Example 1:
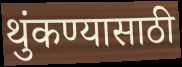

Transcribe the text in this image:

थुंकण्यासाठी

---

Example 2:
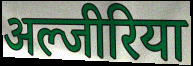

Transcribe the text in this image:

अल्जीरिया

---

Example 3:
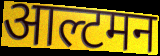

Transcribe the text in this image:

आल्टमन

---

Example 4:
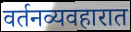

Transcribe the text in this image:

वर्तनव्यवहारात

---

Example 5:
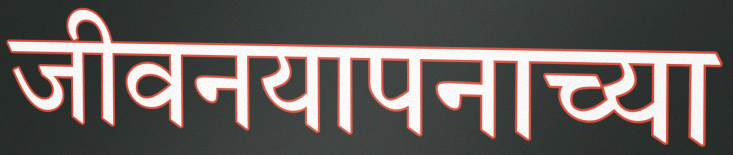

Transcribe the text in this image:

जीवनयापनाच्या